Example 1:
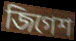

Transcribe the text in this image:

জিগেশ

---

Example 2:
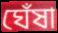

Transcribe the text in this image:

ঘেঁষা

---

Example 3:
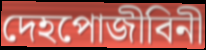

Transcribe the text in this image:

দেহপোজীবিনী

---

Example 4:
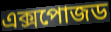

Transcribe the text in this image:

এক্সপোজড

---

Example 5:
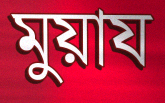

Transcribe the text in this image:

মুয়ায